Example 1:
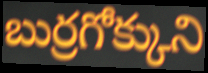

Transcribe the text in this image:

బుర్రగోక్కుని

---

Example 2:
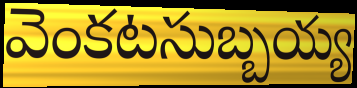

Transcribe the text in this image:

వెంకటసుబ్బయ్య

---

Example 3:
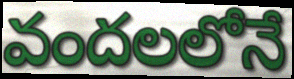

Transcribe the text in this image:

వందలలోనే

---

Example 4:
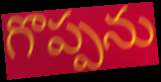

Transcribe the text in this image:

గొప్పను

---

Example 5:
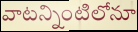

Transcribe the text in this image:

వాటన్నింటిలోనూ